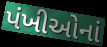
પંખીઓનાં